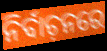
ନିର୍ବାଚ଼ନରେ